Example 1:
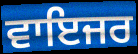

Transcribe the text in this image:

ਵਾਇਜਰ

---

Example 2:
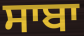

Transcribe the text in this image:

ਸਾਬਾ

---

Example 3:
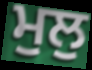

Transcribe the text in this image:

ਮੁਲੁ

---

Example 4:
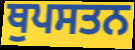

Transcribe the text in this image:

ਥੁਪਸਤਨ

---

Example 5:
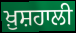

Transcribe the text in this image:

ਖ਼ੁਸ਼ਹਾਲੀ